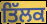
ਤਿੱਲਕ